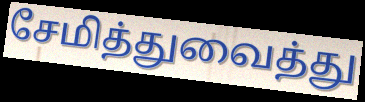
சேமித்துவைத்து